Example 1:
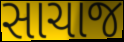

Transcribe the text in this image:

સાચાજ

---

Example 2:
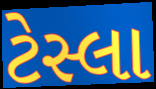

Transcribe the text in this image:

ટેસ્લા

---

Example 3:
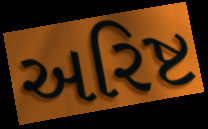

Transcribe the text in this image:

અરિષ્ટ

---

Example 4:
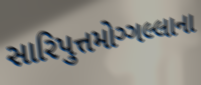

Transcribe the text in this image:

સારિપુત્તમોગ્ગલ્લાના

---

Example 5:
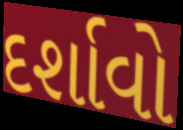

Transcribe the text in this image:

દર્શાવો